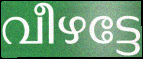
വീഴട്ടേ